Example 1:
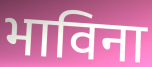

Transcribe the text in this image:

भाविना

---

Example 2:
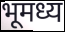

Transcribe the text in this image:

भूमध्य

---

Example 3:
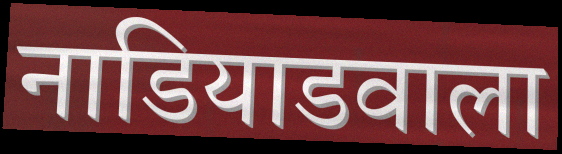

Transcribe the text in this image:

नाडियाडवाला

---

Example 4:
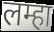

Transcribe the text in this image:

लम्हा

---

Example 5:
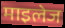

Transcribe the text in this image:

माइलेज